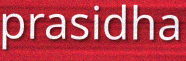
prasidha